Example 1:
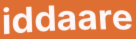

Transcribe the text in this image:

iddaare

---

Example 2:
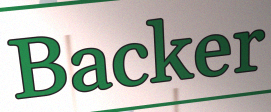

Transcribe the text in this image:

Backer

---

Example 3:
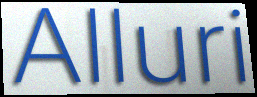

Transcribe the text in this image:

Alluri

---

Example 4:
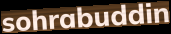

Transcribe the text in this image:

sohrabuddin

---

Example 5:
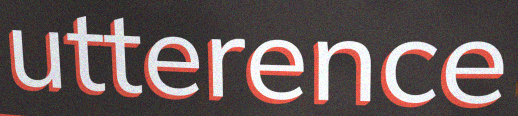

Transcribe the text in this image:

utterence